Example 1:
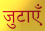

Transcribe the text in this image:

जुटाएँ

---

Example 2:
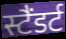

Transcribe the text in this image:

स्टैंडर्ट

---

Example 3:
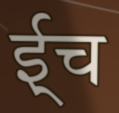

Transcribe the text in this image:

ई्च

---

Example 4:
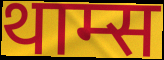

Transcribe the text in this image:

थाम्स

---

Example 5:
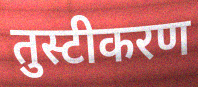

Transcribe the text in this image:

तुस्टीकरण